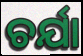
ଚର୍ଯା